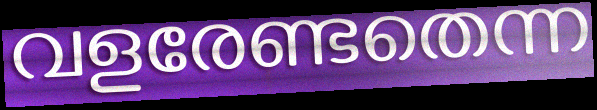
വളരേണ്ടതെന്ന